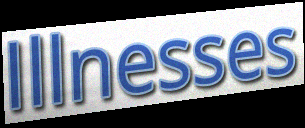
Illnesses